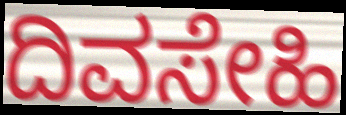
ದಿವಸೇಹಿ